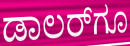
ಡಾಲರ್‌ಗೂ